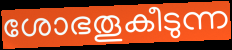
ശോഭതൂകീടുന്ന